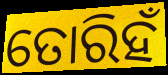
ତୋରିହଁ